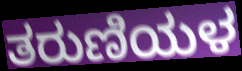
ತರುಣಿಯಳ